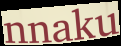
nnaku